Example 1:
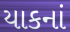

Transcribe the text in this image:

યાકનાં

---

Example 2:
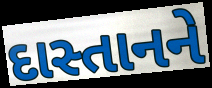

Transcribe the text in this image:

દાસ્તાનને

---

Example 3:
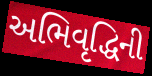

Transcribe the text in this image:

અભિવૃદ્ધિની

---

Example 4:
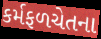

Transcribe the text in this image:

કર્મફળચેતના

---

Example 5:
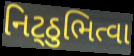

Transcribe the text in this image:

નિટ્ઠુભિત્વા